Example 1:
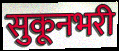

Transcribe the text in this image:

सुकूनभरी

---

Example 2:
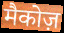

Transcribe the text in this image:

मैकोज़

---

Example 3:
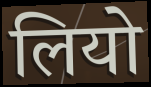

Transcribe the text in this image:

लियो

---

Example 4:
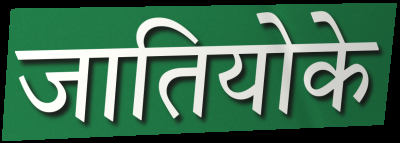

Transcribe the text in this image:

जातियोके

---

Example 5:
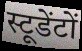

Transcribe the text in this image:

स्टूडेंटों